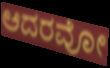
ಆದರವೋ